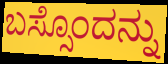
ಬಸ್ಸೊಂದನ್ನು